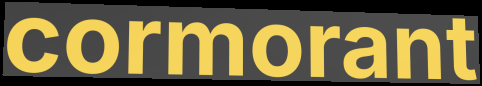
cormorant